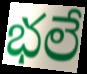
భలే